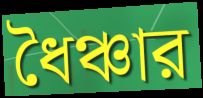
ধৈঞ্চার